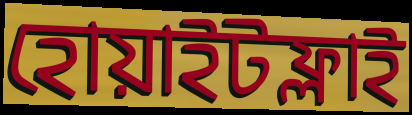
হোয়াইটফ্লাই